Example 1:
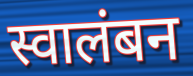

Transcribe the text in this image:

स्वालंबन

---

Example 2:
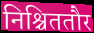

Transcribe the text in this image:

निश्चिततौर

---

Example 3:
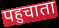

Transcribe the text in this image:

पहुचाता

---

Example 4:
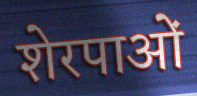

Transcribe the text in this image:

शेरपाओं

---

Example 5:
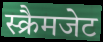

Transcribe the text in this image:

स्‍क्रैमजेट